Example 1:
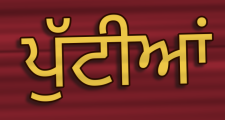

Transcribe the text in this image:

ਪੁੱਟੀਆਂ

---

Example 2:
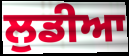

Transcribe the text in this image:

ਲੁਡੀਆ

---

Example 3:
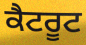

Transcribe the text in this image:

ਕੈਟਰੂਟ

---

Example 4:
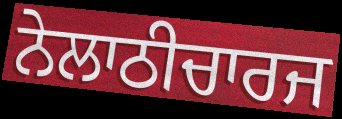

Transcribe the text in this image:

ਨੇਲਾਠੀਚਾਰਜ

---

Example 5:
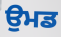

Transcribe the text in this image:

ਉਮਡ